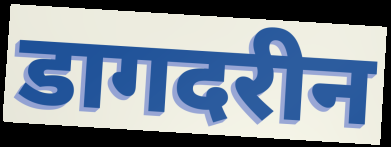
डागदरीन